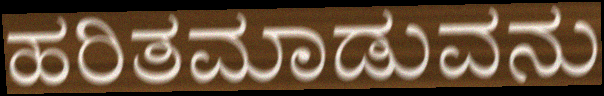
ಹರಿತಮಾಡುವನು